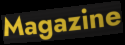
Magazine